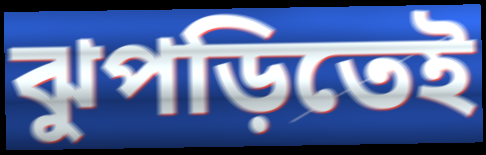
ঝুপড়িতেই